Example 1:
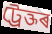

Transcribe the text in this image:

ট্ৰেক্তৰ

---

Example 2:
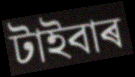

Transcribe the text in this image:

টাইবাৰ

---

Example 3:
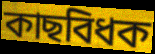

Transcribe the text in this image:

কাছবিধক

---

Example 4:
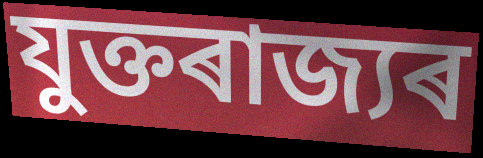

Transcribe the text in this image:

যুক্তৰাজ্যৰ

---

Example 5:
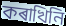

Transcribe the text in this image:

কৰাখিনি